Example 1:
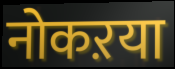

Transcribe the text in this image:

नोकऱया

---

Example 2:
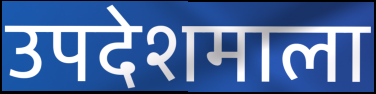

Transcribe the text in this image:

उपदेशमाला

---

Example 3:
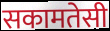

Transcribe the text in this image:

सकामतेसी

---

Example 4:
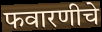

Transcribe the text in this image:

फवारणीचे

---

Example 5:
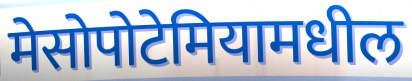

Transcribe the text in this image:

मेसोपोटेमियामधील